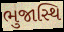
ભુજાસ્થિ